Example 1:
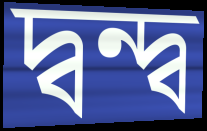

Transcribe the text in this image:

দ্বন্দ্ব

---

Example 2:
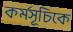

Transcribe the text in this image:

কর্মসূচিকে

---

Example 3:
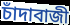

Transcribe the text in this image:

চাঁদাবাজী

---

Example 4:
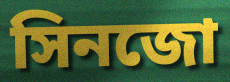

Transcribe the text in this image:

সিনজো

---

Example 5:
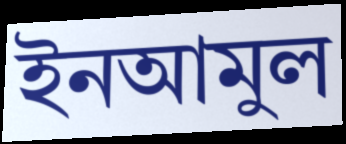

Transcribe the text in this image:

ইনআমুল